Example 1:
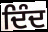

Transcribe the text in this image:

ਦਿੰਦ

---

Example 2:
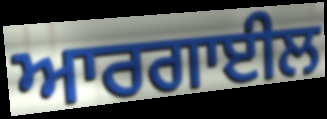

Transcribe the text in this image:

ਆਰਗਾਈਲ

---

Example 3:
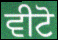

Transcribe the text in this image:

ਵੀਟੋ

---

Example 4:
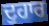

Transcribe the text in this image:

ਦੁਹਾਰ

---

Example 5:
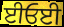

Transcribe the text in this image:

ਈਓਈ